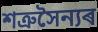
শত্ৰুসৈন্যৰ